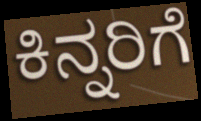
ಕಿನ್ನರಿಗೆ